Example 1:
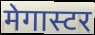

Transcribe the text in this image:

मेगास्टर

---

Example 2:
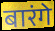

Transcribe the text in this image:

बारंगे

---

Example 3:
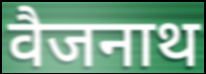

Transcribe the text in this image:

वैजनाथ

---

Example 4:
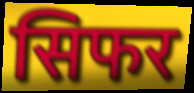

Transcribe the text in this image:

सिफर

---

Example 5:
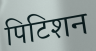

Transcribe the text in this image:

पिटिशन